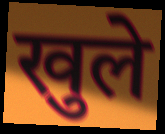
खुले